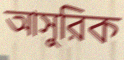
আসুরিক